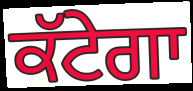
ਕੱਟੇਗਾ